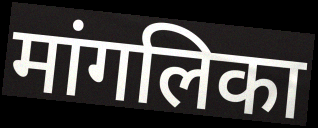
मांगलिका